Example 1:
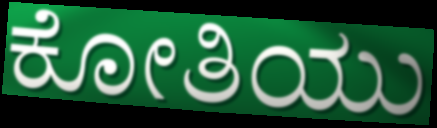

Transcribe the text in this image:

ಕೋತಿಯು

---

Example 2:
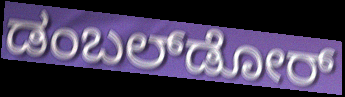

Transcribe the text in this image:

ಡಂಬಲ್‌ಡೋರ್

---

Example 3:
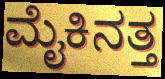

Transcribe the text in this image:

ಮೈಕಿನತ್ತ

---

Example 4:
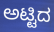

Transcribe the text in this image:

ಅಟ್ಟಿದ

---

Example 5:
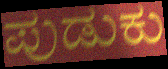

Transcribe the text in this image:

ಪುಡುಕು